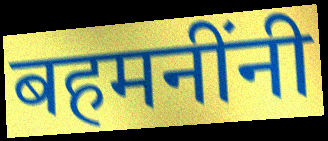
बहमनींनी